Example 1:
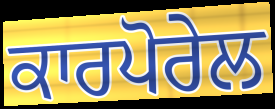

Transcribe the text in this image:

ਕਾਰਪੋਰੇਲ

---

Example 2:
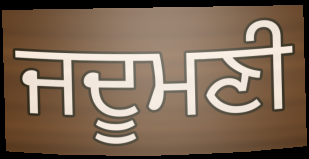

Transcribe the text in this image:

ਜਦੂਮਣੀ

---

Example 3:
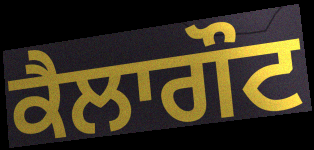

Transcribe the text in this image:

ਕੈਲਾਗੌਟ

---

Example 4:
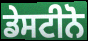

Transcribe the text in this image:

ਡੇਸਟੀਨੋ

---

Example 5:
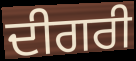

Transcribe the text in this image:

ਦੀਗਰੀ